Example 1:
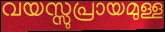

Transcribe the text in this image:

വയസ്സുപ്രായമുള്ള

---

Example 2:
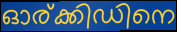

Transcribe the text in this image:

ഓര്ക്കിഡിനെ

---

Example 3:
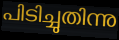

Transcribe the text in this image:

പിടിച്ചുതിന്നു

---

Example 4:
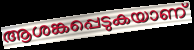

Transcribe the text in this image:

ആശങ്കപ്പെടുകയാണ്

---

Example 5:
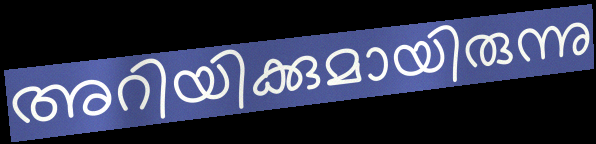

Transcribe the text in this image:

അറിയിക്കുമായിരുന്നു